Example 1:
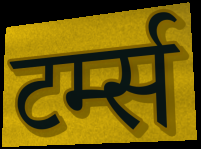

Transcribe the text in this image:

टर्म्स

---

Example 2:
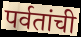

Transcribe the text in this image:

पर्वतांची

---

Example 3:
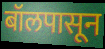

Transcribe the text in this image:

बॉलपासून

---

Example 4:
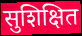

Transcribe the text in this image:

सुशिक्षित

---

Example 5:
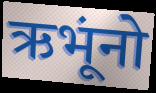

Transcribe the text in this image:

ऋभूंनो